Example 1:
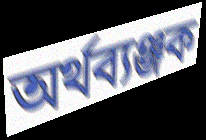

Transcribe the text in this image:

অৰ্থব্যঞ্জক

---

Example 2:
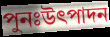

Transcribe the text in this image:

পুনঃউৎপাদন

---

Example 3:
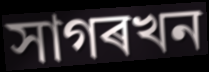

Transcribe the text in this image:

সাগৰখন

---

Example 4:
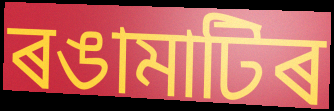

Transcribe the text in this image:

ৰঙামাটিৰ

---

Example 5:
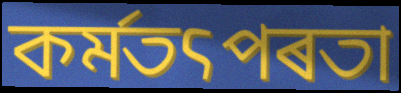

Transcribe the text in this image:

কৰ্মতৎপৰতা